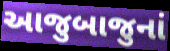
આજુબાજુનાં